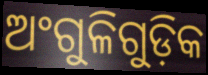
ଅଂଗୁଳିଗୁଡ଼ିକ